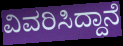
ವಿವರಿಸಿದ್ದಾನೆ